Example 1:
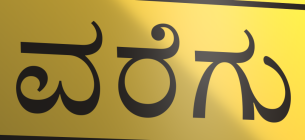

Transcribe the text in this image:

ವರೆಗು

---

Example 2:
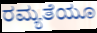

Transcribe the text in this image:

ರಮ್ಯತೆಯೂ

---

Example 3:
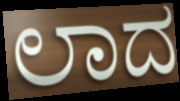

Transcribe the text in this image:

ಲಾದ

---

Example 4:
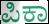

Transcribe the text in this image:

ಪಿಕಾ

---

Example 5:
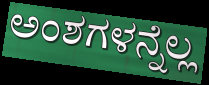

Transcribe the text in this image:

ಅಂಶಗಳನ್ನೆಲ್ಲ